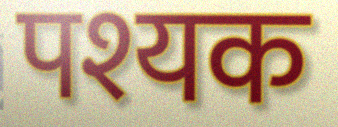
पश्यक